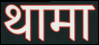
थामा